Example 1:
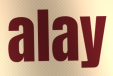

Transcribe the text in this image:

alay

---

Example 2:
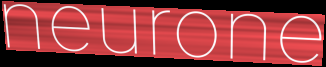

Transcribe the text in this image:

neurone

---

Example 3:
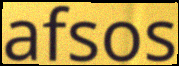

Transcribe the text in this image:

afsos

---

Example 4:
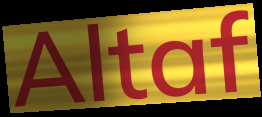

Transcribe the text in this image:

Altaf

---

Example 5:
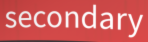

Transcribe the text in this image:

secondary